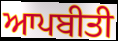
ਆਪਬੀਤੀ